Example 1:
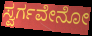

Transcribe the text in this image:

ಸ್ವರ್ಗವೇನೋ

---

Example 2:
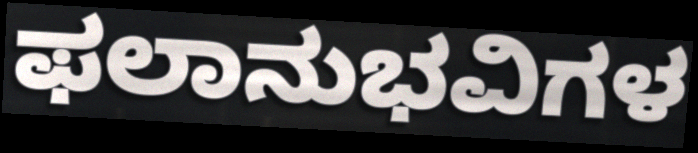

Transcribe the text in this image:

ಫಲಾನುಭವಿಗಳ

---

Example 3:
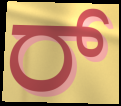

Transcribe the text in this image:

ರ್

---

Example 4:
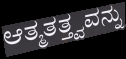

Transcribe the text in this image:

ಆತ್ಮತತ್ತ್ವವನ್ನು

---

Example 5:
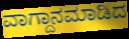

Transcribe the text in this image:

ವಾಗ್ದಾನಮಾಡಿದ